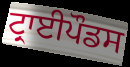
ਟ੍ਰਾਈਪੌਡਸ